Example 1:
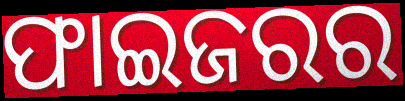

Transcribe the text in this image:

ଫାଇଜରର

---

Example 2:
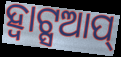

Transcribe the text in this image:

ହ୍ବାଟ୍ସଆପ୍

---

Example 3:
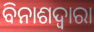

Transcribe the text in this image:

ବିନାଶଦ୍ଵାରା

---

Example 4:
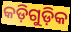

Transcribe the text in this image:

କଡ଼ିଗୁଡ଼ିକ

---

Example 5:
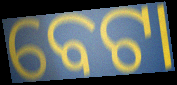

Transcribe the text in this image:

ବେଟା